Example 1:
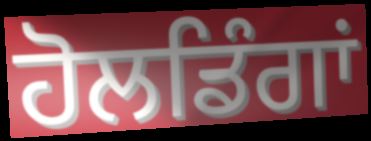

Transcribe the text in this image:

ਹੋਲਡਿੰਗਾਂ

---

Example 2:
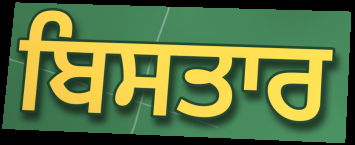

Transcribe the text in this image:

ਬਿਸਤਾਰ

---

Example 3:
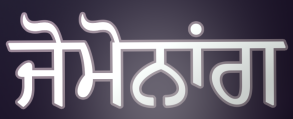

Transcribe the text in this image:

ਜੋਮੋਨਾਂਗ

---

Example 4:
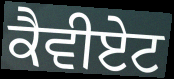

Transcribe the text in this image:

ਕੈਵੀਏਟ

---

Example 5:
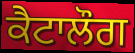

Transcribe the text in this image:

ਕੈਟਾਲੌਗ